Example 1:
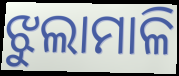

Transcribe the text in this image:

ଝୁଲାମାଳି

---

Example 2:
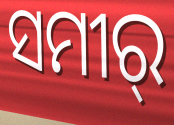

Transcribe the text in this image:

ସମୀର୍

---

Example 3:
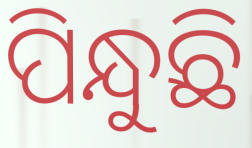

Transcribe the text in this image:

ପିନ୍ଧୁଛି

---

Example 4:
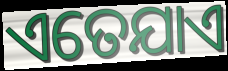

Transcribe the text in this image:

ଏତେଯାଏ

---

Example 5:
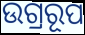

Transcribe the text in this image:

ଉଗ୍ରରୂପ